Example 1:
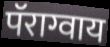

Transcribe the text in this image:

पॅराग्वाय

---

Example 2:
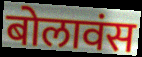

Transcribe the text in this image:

बोलावंस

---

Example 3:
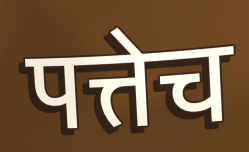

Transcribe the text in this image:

पत्तेच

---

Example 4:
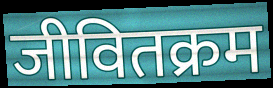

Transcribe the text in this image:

जीवितक्रम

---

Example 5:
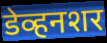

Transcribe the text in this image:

डेव्हनशर